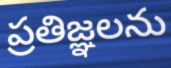
ప్రతిజ్ఞలను